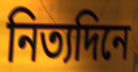
নিত্যদিনে